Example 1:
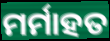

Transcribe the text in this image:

ମର୍ମାହତ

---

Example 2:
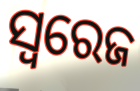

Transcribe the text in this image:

ସ୍ବରେଜ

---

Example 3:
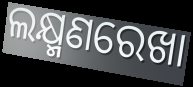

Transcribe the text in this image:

ଲକ୍ଷ୍ମଣରେଖା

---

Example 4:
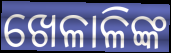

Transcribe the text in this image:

ଖେଳାଳିଙ୍କ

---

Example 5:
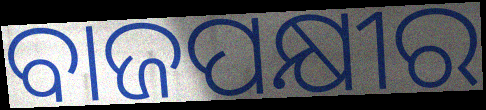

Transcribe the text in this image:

ବାଜପକ୍ଷୀର